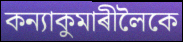
কন্যাকুমাৰীলৈকে